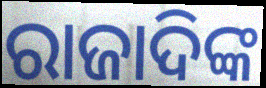
ରାଜାଦିଙ୍କ